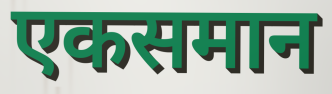
एकसमान